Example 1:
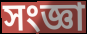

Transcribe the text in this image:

সংজ্ঞা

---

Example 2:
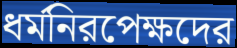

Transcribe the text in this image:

ধর্মনিরপেক্ষদের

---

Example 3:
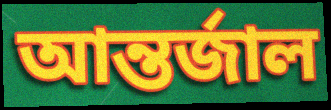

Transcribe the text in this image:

আন্তর্জাল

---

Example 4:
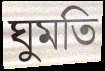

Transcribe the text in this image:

ঘুমতি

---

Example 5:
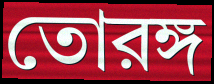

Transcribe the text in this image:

তোরঙ্গ